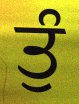
ਤੁੰ